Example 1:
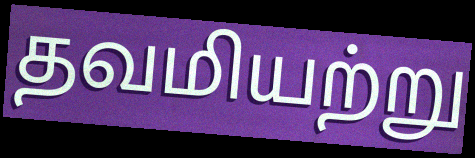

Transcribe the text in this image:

தவமியற்று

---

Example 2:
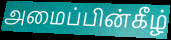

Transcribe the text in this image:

அமைப்பின்கீழ்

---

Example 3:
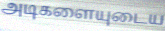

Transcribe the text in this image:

அடிகளையுடைய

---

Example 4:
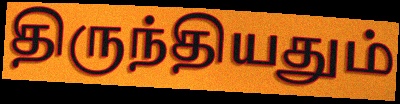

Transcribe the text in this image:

திருந்தியதும்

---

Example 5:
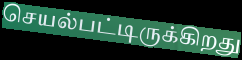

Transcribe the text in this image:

செயல்பட்டிருக்கிறது